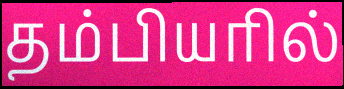
தம்பியரில்